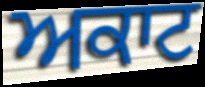
ਅਕਾਟ